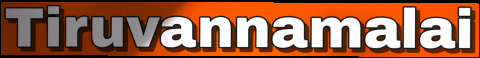
Tiruvannamalai